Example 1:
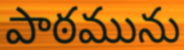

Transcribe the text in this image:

పాఠమును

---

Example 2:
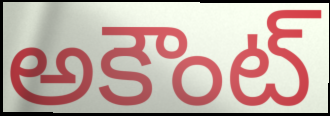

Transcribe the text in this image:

అకౌంట్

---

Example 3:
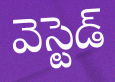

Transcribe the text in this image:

వెస్టెడ్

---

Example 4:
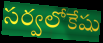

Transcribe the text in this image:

సర్వలోకేషు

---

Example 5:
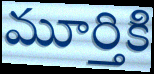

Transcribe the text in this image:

మూర్తికి